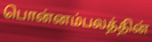
பொன்னம்பலத்தின்